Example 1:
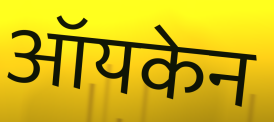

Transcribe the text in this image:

ऑयकेन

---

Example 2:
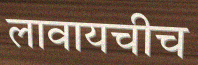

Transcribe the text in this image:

लावायचीच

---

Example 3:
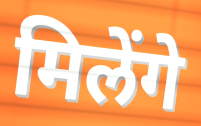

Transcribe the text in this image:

मिलेंगे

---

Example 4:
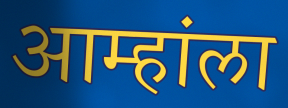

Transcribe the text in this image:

आम्हांला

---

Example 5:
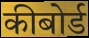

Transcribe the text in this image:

कीबोर्ड